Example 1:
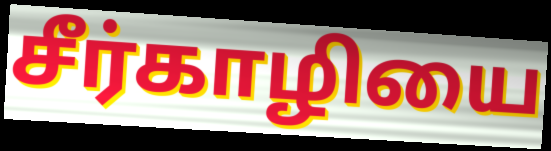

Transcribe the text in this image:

சீர்காழியை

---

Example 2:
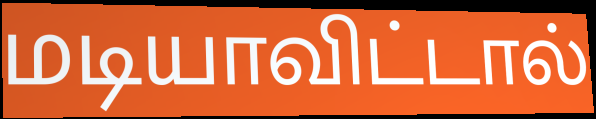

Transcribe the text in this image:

மடியாவிட்டால்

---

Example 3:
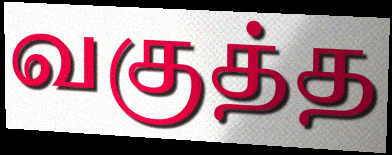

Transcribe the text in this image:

வகுத்த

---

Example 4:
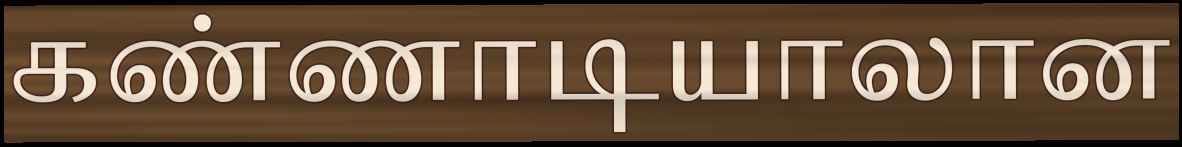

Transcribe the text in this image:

கண்ணாடியாலான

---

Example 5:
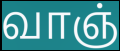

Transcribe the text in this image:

வாஞ்